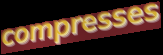
compresses